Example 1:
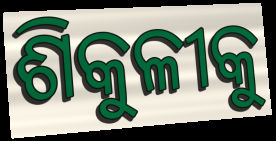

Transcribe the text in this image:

ଶିକୁଳୀକୁ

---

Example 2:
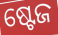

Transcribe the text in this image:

ଷ୍ଟେଜ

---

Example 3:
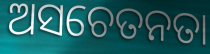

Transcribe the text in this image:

ଅସଚେତନତା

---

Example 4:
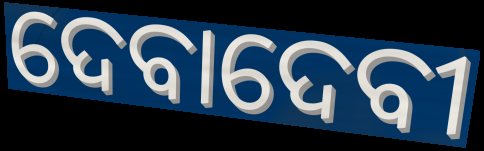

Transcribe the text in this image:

ଦେବାଦେବୀ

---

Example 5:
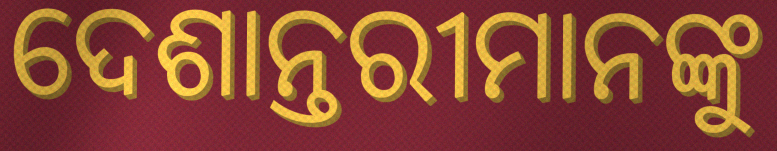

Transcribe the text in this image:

ଦେଶାନ୍ତରୀମାନଙ୍କୁ